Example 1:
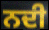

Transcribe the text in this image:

ਨਦੀ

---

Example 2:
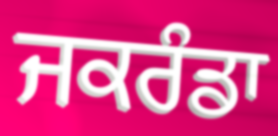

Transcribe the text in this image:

ਜਕਰੰਡਾ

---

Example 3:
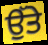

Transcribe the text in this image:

ਉੱਤੇ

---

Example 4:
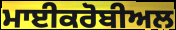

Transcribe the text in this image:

ਮਾਈਕਰੋਬੀਅਲ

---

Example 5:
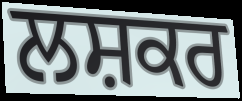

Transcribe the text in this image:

ਲਸ਼ਕਰ